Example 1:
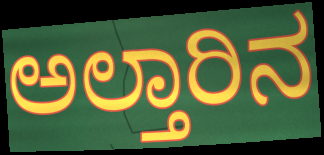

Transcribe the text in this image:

ಅಲ್ತಾರಿನ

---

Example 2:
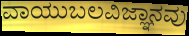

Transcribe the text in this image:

ವಾಯುಬಲವಿಜ್ಞಾನವು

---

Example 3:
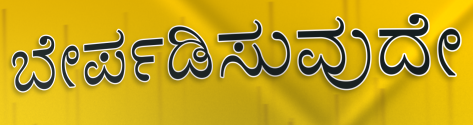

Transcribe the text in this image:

ಬೇರ್ಪಡಿಸುವುದೇ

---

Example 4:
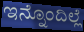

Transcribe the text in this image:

ಇನ್ನೊಂದಿಲ್ಲೆ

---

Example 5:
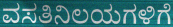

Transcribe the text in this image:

ವಸತಿನಿಲಯಗಳಿಗೆ